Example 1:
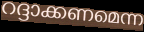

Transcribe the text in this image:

റദ്ദാക്കണമെന്ന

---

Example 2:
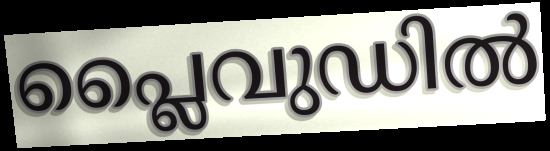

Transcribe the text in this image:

പ്ലൈവുഡിൽ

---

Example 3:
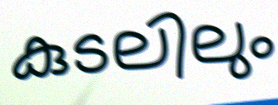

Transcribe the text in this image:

കുടലിലും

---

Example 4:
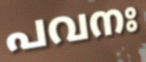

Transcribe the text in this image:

പവനഃ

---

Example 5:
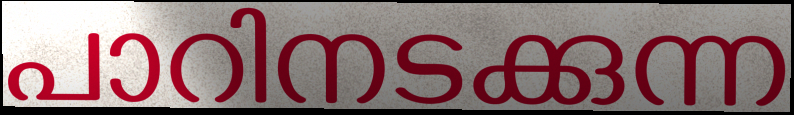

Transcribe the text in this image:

പാറിനടക്കുന്ന